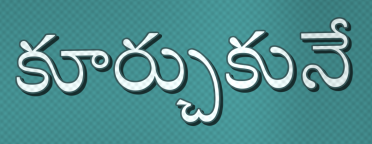
కూర్చుకునే